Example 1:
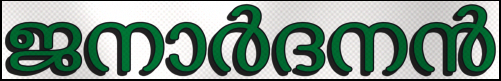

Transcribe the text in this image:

ജനാർദനൻ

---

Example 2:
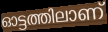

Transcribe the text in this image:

ഓട്ടത്തിലാണ്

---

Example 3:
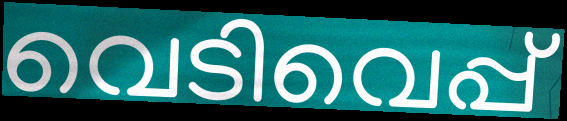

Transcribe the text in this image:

വെടിവെപ്പ്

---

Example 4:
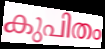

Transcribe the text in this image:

കുപിതം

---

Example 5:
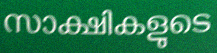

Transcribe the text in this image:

സാക്ഷികളുടെ